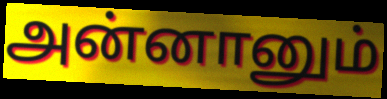
அன்னானும்